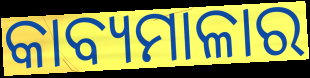
କାବ୍ୟମାଳାର